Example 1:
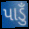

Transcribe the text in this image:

પાડુઁ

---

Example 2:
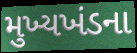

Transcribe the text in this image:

મુખ્યખંડના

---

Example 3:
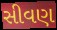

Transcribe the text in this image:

સીવણ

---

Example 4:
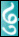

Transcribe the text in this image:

ઢુ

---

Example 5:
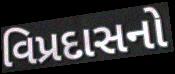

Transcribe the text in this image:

વિપ્રદાસનો